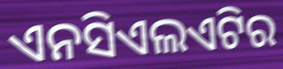
ଏନସିଏଲଏଟିର